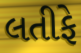
લતીફે